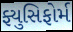
ફ્યુસિફોર્મ